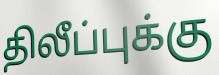
திலீப்புக்கு